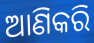
ଆଣିକରି